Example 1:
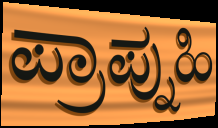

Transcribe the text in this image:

ಪ್ರಾಪ್ನುಹಿ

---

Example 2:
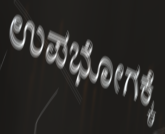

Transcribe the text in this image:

ಉಪಭೋಗಕ್ಕೆ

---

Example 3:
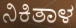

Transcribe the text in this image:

ನಿಕಿತಾಳ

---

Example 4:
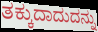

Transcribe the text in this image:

ತಕ್ಕುದಾದುದನ್ನು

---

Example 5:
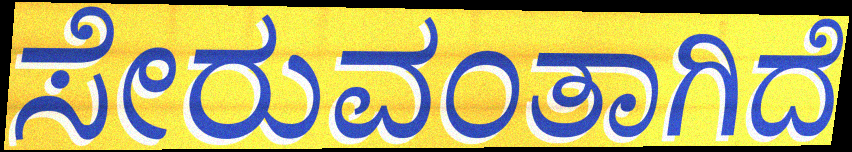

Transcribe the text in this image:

ಸೇರುವಂತಾಗಿದೆ